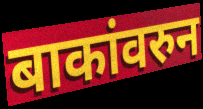
बाकांवरुन